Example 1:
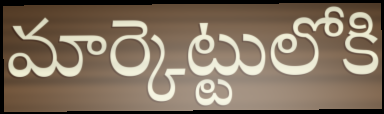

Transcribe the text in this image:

మార్కెట్టులోకి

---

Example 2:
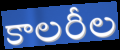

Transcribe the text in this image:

కాలరీల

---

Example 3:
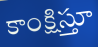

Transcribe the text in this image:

కాంక్షిస్తూ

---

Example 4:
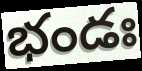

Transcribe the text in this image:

భండః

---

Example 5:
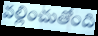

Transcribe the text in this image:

వల్లించుతోంది